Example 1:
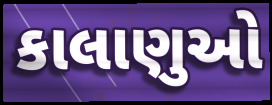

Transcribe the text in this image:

કાલાણુઓ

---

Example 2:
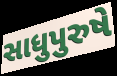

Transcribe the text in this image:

સાધુપુરુષે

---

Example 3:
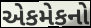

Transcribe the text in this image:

એકમેકનો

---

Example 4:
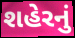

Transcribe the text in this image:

શહેરનું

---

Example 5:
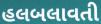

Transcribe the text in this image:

હલબલાવતી